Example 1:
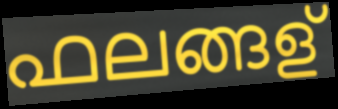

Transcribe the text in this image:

ഫലങ്ങള്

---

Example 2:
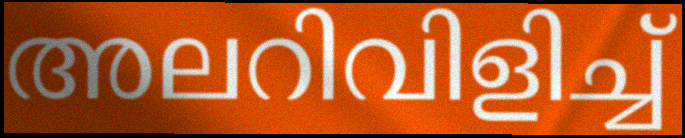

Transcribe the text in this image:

അലറിവിളിച്ച്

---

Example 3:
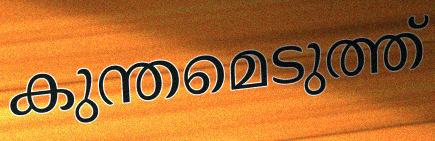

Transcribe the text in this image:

കുന്തമെടുത്ത്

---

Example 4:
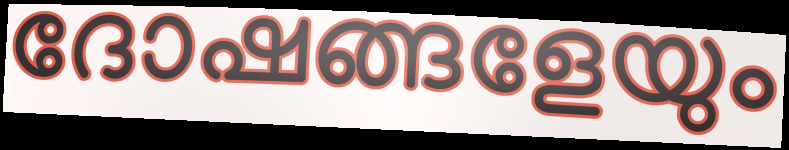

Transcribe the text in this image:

ദോഷങ്ങളേയും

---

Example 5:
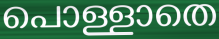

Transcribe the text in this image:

പൊള്ളാതെ